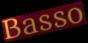
Basso